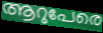
ആറുപേരെ